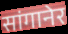
सांगानेर